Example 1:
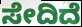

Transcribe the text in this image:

ಸೇದಿದೆ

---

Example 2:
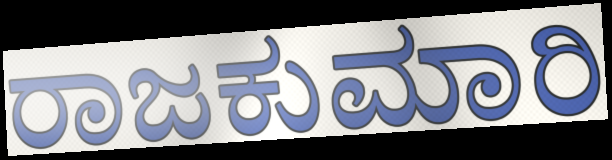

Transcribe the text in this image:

ರಾಜಕುಮಾರಿ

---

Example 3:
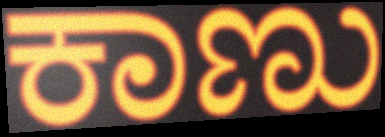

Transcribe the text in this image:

ಕಾಣು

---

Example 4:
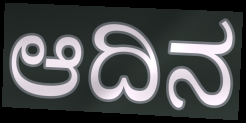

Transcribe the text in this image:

ಆದಿನ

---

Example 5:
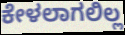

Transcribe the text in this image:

ಕೇಳಲಾಗಲಿಲ್ಲ